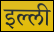
इल्ली